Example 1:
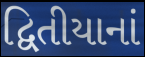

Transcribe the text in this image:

દ્વિતીયાનાં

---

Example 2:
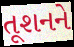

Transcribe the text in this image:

તૂશનને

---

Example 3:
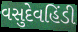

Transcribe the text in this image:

વસુદેવહિંડી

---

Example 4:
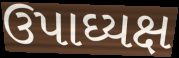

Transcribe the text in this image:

ઉપાઘ્યક્ષ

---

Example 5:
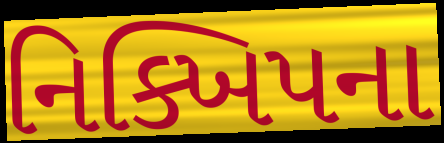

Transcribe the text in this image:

નિક્ખિપના